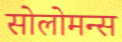
सोलोमन्स